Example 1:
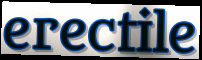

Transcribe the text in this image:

erectile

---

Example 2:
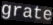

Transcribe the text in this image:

grate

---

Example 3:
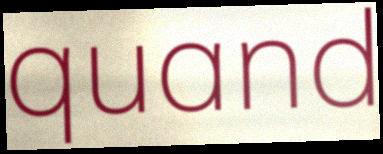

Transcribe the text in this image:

quand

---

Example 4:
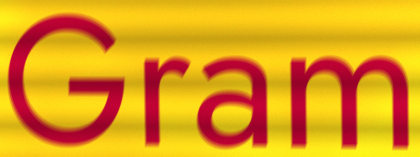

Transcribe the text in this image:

Gram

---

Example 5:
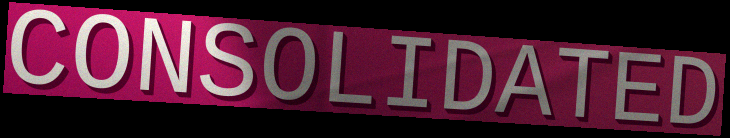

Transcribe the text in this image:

CONSOLIDATED